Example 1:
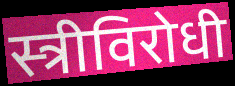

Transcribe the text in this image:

स्त्रीविरोधी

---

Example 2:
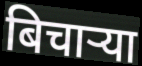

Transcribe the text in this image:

बिचाऱ्या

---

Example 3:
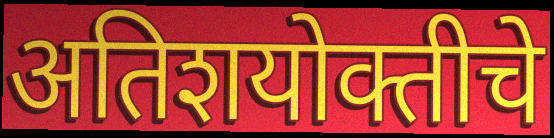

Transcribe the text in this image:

अतिशयोक्तीचे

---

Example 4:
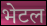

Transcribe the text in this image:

भेटल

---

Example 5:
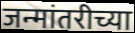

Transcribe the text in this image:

जन्मांतरीच्या